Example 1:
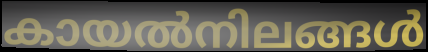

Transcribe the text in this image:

കായൽനിലങ്ങൾ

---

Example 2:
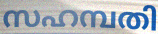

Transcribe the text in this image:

സഹമ്പതി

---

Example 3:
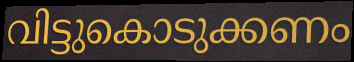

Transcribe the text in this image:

വിട്ടുകൊടുക്കണം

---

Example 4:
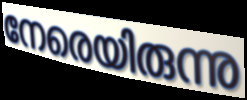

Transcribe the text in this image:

നേരെയിരുന്നു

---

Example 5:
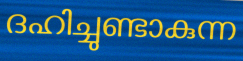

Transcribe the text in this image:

ദഹിച്ചുണ്ടാകുന്ന